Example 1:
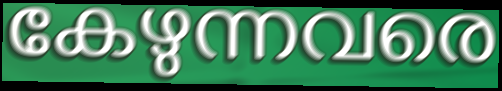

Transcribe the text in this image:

കേഴുന്നവരെ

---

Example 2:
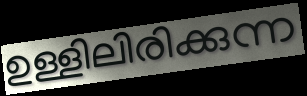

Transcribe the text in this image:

ഉള്ളിലിരിക്കുന്ന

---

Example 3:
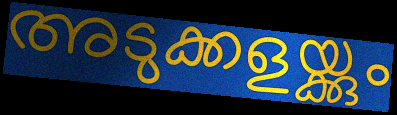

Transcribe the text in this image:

അടുക്കളയ്ക്കും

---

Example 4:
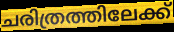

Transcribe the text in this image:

ചരിത്രത്തിലേക്ക്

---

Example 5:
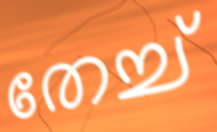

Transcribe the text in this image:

തേച്ച്